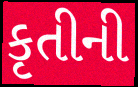
કૃતીની